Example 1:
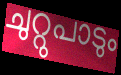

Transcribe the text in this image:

ചുറ്റുപാടും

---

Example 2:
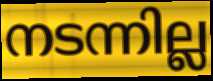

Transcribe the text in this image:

നടന്നില്ല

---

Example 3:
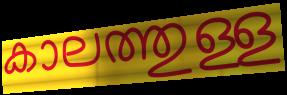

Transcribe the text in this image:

കാലത്തുള്ള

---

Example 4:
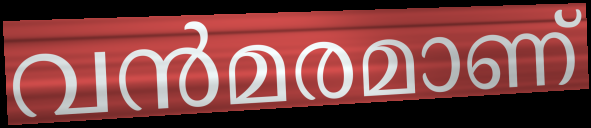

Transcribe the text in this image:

വൻമരമാണ്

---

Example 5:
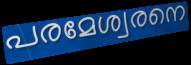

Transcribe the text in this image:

പരമേശ്വരനെ